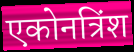
एकोनत्रिंश